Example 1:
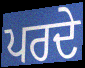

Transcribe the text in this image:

ਪਰਦੇ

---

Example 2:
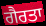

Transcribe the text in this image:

ਗੈਰਤਾ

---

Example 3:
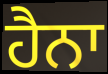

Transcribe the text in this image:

ਹੈਨਾ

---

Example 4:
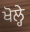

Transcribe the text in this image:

ਖੋਲ੍ਹੇ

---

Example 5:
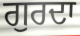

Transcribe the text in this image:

ਗੁਰਦਾ